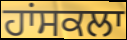
ਹਾਂਸਕਲਾ